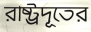
রাষ্ট্রদূতের